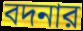
বদনার